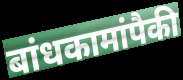
बांधकामांपैकी